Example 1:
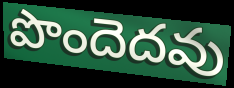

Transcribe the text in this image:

పొందెదవు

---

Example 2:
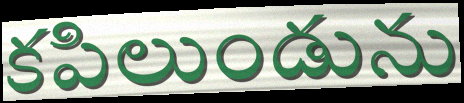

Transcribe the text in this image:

కపిలుండును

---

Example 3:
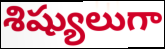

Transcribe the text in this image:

శిష్యులుగా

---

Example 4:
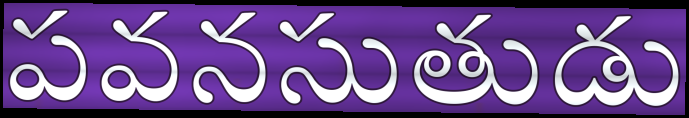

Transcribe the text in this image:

పవనసుతుడు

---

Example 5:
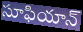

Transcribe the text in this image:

సూఫియాన్